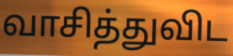
வாசித்துவிட